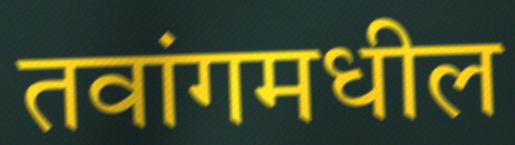
तवांगमधील